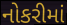
નોકરીમાં